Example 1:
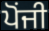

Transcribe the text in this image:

ਪੋਂਜੀ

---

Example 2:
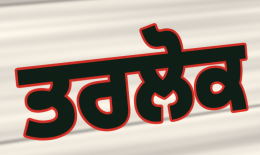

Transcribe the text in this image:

ਤਰਲੋਕ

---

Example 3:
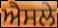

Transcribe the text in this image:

ਐਸਲੇ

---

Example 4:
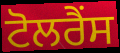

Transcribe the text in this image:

ਟੋਲਰੈਂਸ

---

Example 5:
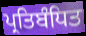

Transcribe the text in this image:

ਪ੍ਰਤਿਬੰਧਿਤ